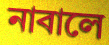
নাবালে